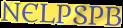
NELPSPB